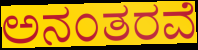
ಅನಂತರವೆ